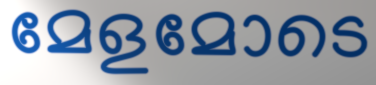
മേളമോടെ